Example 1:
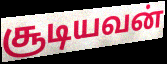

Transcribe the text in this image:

சூடியவன்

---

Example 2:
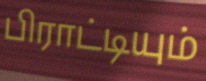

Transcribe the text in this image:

பிராட்டியும்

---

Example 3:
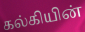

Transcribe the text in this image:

கல்கியின்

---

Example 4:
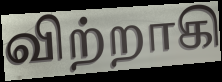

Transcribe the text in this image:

விற்றாகி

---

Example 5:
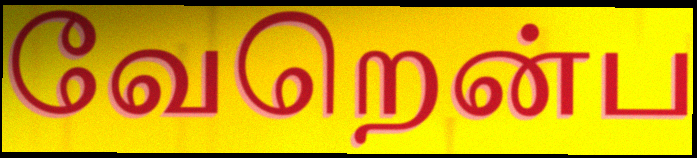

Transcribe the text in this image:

வேறென்ப